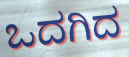
ಒದಗಿದ